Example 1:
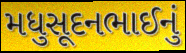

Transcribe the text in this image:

મધુસૂદનભાઈનું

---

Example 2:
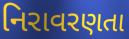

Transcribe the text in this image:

નિરાવરણતા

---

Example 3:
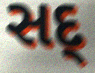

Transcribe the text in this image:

સદ્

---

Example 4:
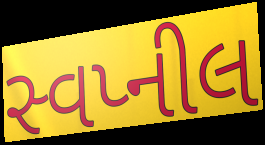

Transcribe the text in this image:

સ્વપ્નીલ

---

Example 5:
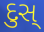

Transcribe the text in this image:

દુસ્